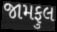
જામફુલ